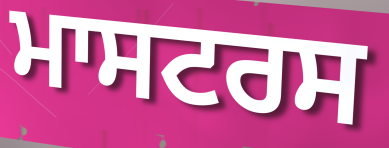
ਮਾਸਟਰਸ